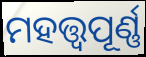
ମହତ୍ତ୍ଵପୂର୍ଣ୍ଣ